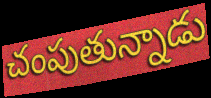
చంపుతున్నాడు